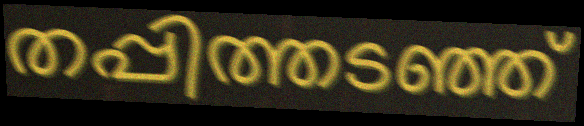
തപ്പിത്തടഞ്ഞ്